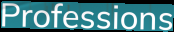
Professions